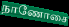
நாணோசை